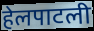
हेलपाटली